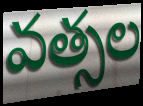
వత్సల